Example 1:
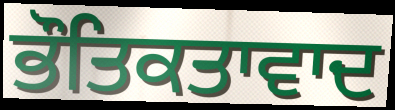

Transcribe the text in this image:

ਭੌਤਿਕਤਾਵਾਦ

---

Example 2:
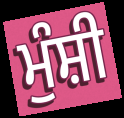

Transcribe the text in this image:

ਮੁੰਸ਼ੀ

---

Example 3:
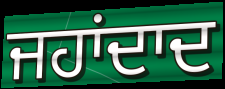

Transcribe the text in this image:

ਜਹਾਂਦਾਦ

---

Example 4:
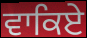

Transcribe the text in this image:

ਵਾਕਿਏ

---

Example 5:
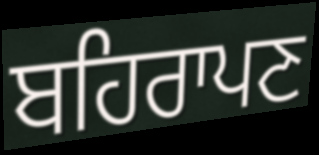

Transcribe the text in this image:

ਬਹਿਰਾਪਣ